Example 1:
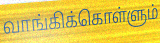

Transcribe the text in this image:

வாங்கிக்கொள்ளும்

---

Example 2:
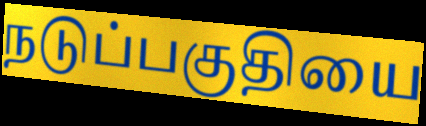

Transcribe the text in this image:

நடுப்பகுதியை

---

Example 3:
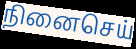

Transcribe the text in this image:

நினைசெய்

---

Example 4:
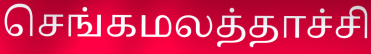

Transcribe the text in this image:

செங்கமலத்தாச்சி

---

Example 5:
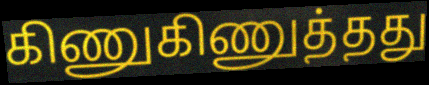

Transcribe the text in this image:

கிணுகிணுத்தது